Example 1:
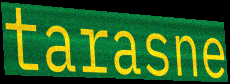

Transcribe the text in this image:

tarasne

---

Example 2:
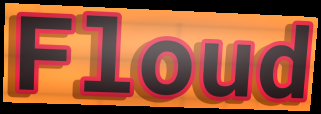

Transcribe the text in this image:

Floud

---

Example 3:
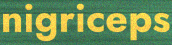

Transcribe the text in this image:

nigriceps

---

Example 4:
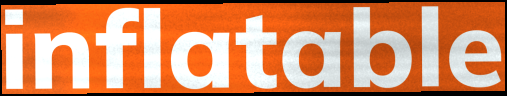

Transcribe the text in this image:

inflatable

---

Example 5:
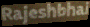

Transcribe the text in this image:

Rajeshbhai